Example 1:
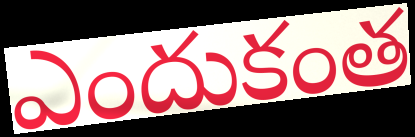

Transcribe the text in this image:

ఎందుకంత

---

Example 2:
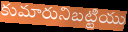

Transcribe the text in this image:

కుమారునిబట్టియు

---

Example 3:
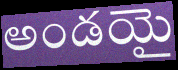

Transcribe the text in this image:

అండయై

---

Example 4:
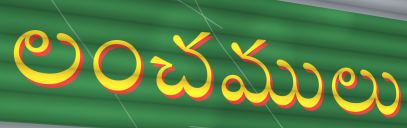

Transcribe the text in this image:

లంచములు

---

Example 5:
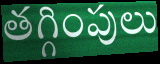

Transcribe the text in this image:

తగ్గింపులు